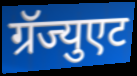
ग्रॅज्युएट